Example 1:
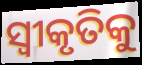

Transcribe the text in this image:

ସ୍ବୀକୃତିକୁ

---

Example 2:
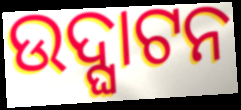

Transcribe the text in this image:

ଉଦ୍ଘାଟନ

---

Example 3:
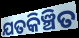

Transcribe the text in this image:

ଯତକିଞ୍ଚିତ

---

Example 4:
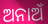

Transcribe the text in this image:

ଅନାଅଁ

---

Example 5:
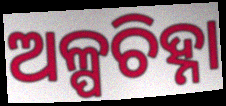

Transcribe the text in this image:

ଅଳ୍ପଚିହ୍ନା